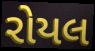
રોયલ